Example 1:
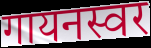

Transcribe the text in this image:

गायनस्वर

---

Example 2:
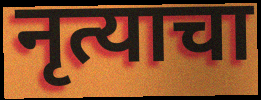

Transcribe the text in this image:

नृत्याचा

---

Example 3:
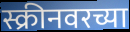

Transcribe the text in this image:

स्क्रीनवरच्या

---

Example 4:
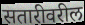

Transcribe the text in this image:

सतारीवरील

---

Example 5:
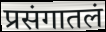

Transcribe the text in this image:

प्रसंगातलं